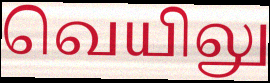
வெயிலு